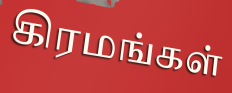
கிரமங்கள்